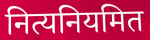
नित्यनियमित